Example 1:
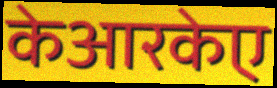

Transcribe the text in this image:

केआरकेए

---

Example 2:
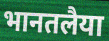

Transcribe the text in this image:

भानतलैया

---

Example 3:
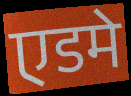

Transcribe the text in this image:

एडमे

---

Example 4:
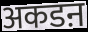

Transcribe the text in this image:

अकडऩ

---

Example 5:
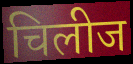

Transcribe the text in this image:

चिलीज